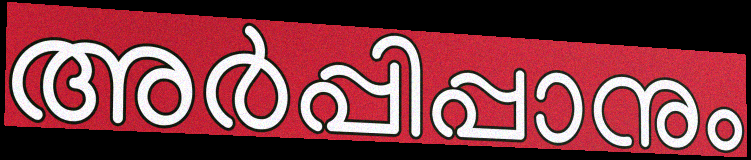
അർപ്പിപ്പാനും